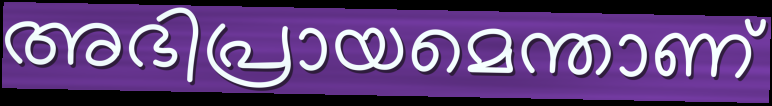
അഭിപ്രായമെന്താണ്